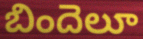
బిందెలూ